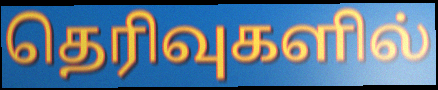
தெரிவுகளில்